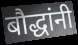
बौद्धांनी